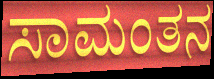
ಸಾಮಂತನ